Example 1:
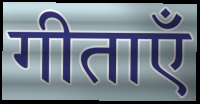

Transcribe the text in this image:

गीताएँ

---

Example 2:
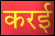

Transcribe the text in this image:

करई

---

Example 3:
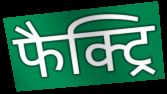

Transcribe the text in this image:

फैक्ट्रि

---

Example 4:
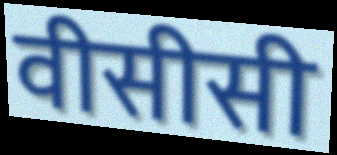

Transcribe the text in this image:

वीसीसी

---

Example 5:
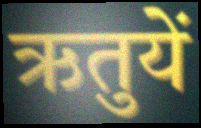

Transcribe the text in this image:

ऋतुयें